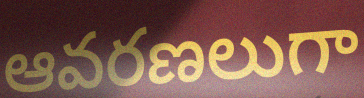
ఆవరణలుగా